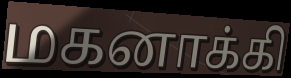
மகனாக்கி